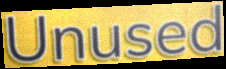
Unused